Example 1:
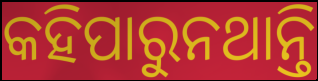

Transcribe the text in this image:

କହିପାରୁନଥାନ୍ତି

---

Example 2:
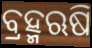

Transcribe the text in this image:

ବ୍ରହ୍ମଋଷି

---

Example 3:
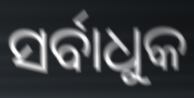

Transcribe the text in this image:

ସର୍ବାଧୁକ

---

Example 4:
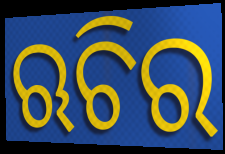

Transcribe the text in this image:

ଋଚିର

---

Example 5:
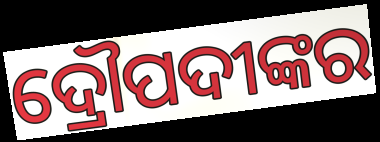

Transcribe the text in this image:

ଦ୍ରୌପଦୀଙ୍କର